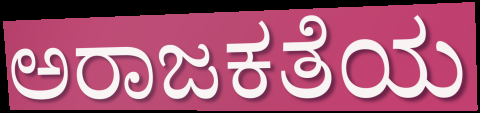
ಅರಾಜಕತೆಯ